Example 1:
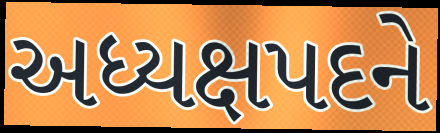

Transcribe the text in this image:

અધ્યક્ષપદને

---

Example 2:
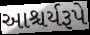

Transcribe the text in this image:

આશ્ચર્યરૂપે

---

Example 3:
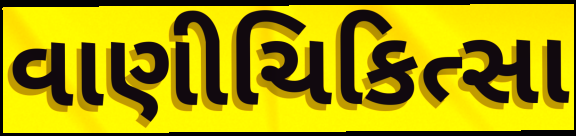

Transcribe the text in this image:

વાણીચિકિત્સા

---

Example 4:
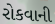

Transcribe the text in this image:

રોકવાની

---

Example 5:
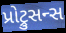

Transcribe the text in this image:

પ્રોટ્રુસન્સ